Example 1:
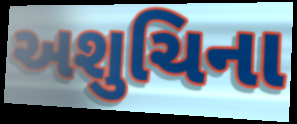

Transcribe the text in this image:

અશુચિના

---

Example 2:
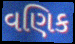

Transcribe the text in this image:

વણિક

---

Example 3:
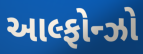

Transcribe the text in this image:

આલ્ફોન્ઝો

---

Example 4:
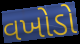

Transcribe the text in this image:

વખોડો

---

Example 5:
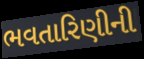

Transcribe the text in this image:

ભવતારિણીની